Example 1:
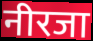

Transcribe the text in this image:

नीरजा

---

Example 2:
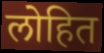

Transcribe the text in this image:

लोहित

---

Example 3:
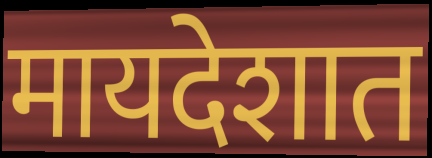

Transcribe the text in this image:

मायदेशात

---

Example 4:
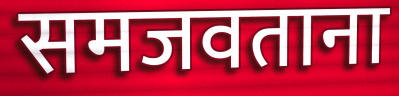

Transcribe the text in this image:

समजवताना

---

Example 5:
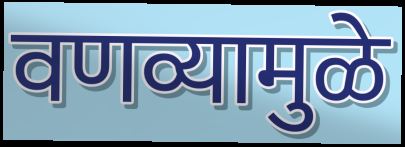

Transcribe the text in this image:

वणव्यामुळे